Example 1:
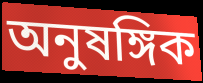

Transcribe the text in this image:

অনুষঙ্গিক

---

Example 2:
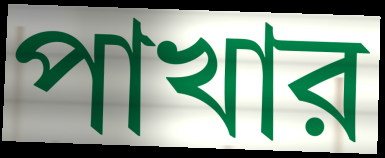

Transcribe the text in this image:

পাখার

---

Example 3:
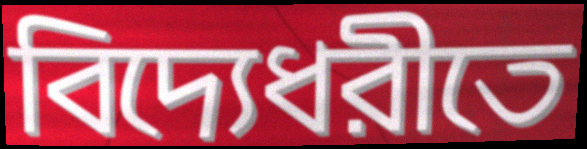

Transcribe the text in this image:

বিদ্যেধরীতে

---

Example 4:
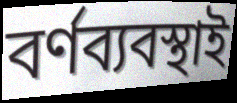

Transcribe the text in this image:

বর্ণব্যবস্থাই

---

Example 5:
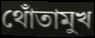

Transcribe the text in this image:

থোঁতামুখ